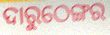
ଦାରୁଠେଙ୍ଗର